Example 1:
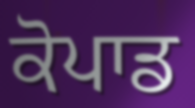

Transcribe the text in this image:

ਕੋਪਾਡ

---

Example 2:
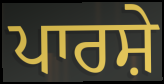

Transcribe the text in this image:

ਪਾਰਸ਼ੇ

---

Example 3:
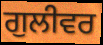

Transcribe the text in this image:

ਗੁਲੀਵਰ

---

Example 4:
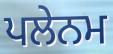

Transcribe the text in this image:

ਪਲੇਨਮ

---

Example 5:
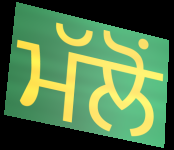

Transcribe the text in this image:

ਮੱਲੋਂ